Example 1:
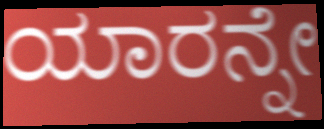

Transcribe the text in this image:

ಯಾರನ್ನೇ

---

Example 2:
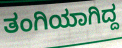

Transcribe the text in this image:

ತಂಗಿಯಾಗಿದ್ದ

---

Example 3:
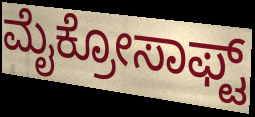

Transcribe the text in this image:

ಮೈಕ್ರೋಸಾಫ್ಟ್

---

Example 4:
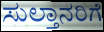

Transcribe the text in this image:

ಸುಲ್ತಾನರಿಗೆ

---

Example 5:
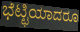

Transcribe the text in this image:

ಭೆಟ್ಟಿಯಾದರೂ